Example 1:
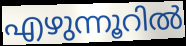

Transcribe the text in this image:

എഴുന്നൂറിൽ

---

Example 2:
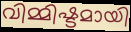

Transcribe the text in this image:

വിമ്മിഷ്ടമായി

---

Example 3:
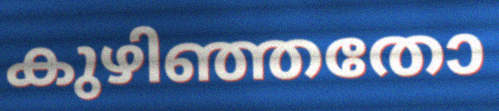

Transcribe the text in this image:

കുഴിഞ്ഞതോ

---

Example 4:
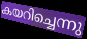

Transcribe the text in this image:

കയറിച്ചെന്നു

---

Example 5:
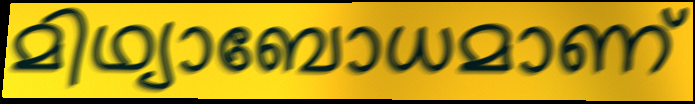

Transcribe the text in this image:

മിഥ്യാബോധമാണ്